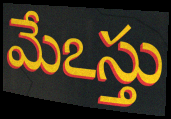
మేఽస్తు